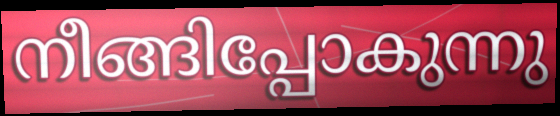
നീങ്ങിപ്പോകുന്നു